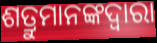
ଶତ୍ରୁମାନଙ୍କଦ୍ଵାରା